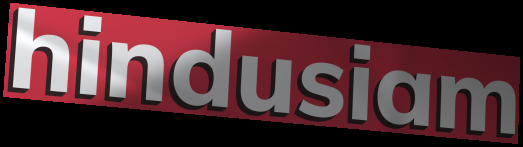
hindusiam